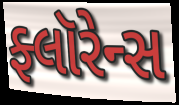
ફ્લૉરેન્સ